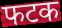
फटक